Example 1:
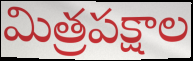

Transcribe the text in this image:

మిత్రపక్షాల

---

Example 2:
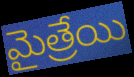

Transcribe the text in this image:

మైత్రేయి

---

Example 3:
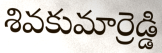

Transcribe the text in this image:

శివకుమార్రెడ్డి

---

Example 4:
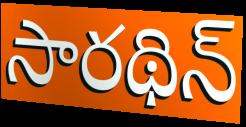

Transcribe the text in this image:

సారథిన్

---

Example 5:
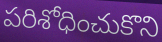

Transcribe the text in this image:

పరిశోధించుకొని